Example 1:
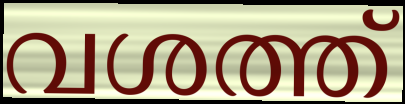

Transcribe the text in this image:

വശത്ത്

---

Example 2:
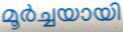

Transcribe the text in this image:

മൂർച്ചയായി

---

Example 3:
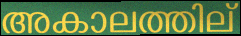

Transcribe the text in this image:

അകാലത്തില്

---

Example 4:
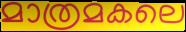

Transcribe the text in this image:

മാത്രമകലെ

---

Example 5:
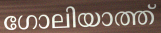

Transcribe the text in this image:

ഗോലിയാത്ത്